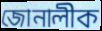
জোনালীক